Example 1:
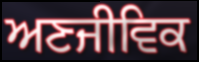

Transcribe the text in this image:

ਅਣਜੀਵਿਕ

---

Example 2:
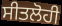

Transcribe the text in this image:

ਸੀਤਲੋਹੀ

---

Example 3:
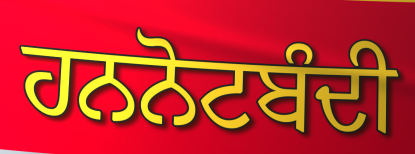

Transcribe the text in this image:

ਹਨਨੋਟਬੰਦੀ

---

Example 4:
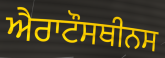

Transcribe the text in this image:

ਐਰਾਟੌਸਥੀਨਸ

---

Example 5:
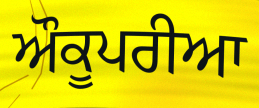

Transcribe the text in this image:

ਔਕੂਪਰੀਆ